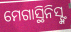
ମେଗାସ୍ଥିନିସ୍ଙ୍କ